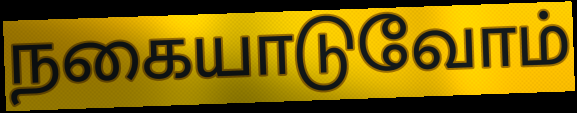
நகையாடுவோம்